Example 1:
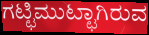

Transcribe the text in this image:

ಗಟ್ಟಿಮುಟ್ಟಾಗಿರುವ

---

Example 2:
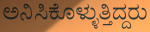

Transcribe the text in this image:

ಅನಿಸಿಕೊಳ್ಳುತ್ತಿದ್ದರು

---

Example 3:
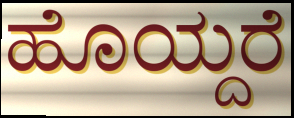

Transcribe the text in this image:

ಹೊಯ್ದರೆ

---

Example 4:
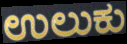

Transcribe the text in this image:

ಉಲುಕು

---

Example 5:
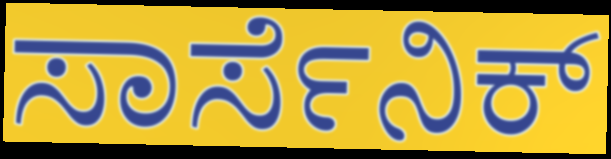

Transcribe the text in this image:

ಸಾರ್ಸೆನಿಕ್